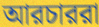
আরচাররা